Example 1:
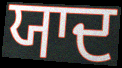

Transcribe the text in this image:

ਯਾਦ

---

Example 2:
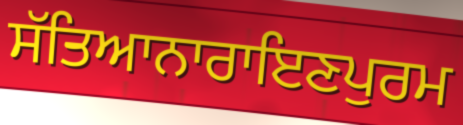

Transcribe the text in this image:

ਸੱਤਿਆਨਾਰਾਇਣਪੁਰਮ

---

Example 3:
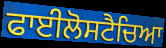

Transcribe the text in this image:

ਫਾਈਲੋਸਟੈਚਿਆ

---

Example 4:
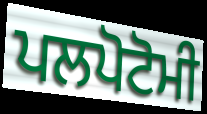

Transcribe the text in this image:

ਪਲਪੋਟੋਮੀ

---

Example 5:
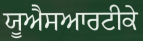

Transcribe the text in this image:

ਯੂਐਸਆਰਟੀਕੇ